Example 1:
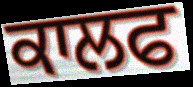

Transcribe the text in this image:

ਕਾਲਫ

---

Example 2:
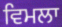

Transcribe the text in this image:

ਵਿਮਲਾ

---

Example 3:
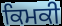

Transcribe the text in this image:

ਕਿਮਕੀ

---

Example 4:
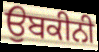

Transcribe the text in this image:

ਉਬਕੀਨੀ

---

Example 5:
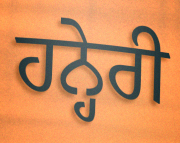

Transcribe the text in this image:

ਹਨ੍ਹੇਰੀ